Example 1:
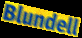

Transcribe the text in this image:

Blundell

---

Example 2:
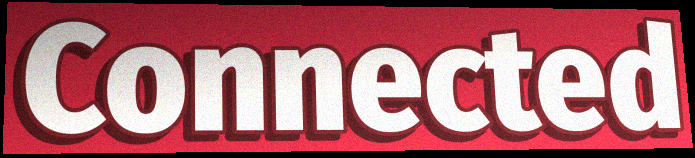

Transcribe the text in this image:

Connected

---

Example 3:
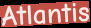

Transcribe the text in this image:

Atlantis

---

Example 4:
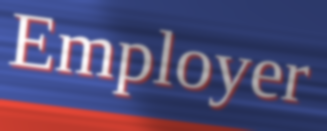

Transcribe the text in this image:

Employer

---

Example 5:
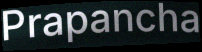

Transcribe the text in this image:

Prapancha